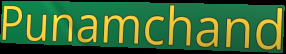
Punamchand